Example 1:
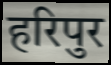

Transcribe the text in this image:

हरिपुर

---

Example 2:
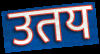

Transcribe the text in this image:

उतय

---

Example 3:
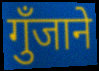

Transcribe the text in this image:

गुँजाने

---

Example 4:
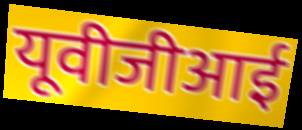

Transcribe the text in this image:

यूवीजीआई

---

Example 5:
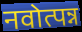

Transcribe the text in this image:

नवोत्पन्न